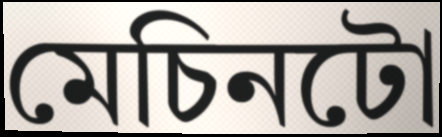
মেচিনটো